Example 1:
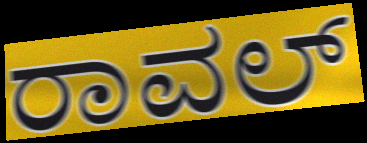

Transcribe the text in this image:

ರಾವಲ್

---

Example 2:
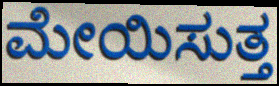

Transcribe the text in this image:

ಮೇಯಿಸುತ್ತ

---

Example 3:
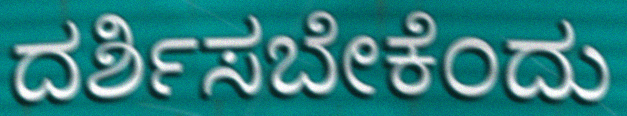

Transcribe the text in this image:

ದರ್ಶಿಸಬೇಕೆಂದು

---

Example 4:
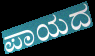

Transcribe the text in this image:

ಪಾಯದ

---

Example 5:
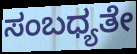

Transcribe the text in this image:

ಸಂಬಧ್ಯತೇ